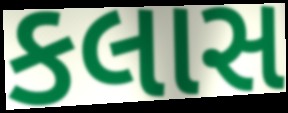
કલાસ